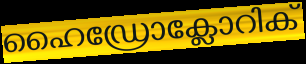
ഹൈഡ്രോക്ലോറിക്